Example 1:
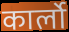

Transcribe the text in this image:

कार्लो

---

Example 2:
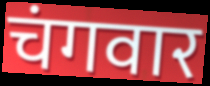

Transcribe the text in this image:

चंगवार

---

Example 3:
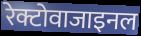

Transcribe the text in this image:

रेक्टोवाजाइनल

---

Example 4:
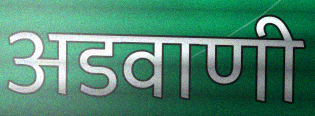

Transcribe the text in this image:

अडवाणी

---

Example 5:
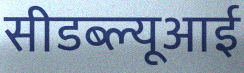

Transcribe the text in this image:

सीडब्ल्यूआई